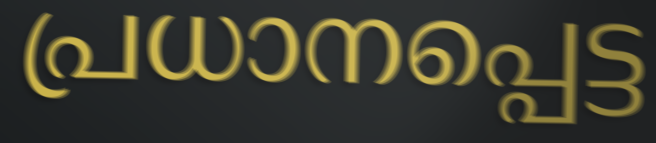
പ്രധാനപ്പെട്ട